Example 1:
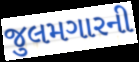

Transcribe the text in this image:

જુલમગારની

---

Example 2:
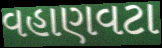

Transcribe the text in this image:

વહાણવટા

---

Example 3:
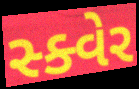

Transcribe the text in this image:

સ્ક્વેર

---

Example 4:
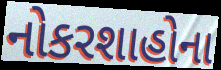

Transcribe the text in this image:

નોકરશાહોના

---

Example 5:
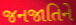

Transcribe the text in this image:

જનજાતિને